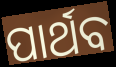
ପାର୍ଥବ